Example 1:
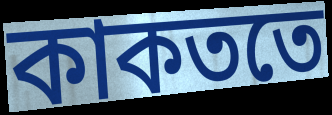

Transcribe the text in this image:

কাকততে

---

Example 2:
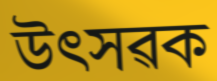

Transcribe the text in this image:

উৎসৱক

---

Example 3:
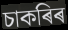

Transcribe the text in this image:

চাকৰিৰ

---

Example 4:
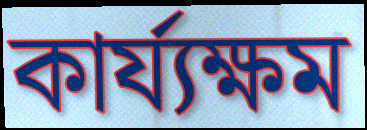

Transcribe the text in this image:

কাৰ্য্যক্ষম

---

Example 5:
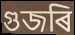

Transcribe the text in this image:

গুজৰি